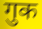
गुक